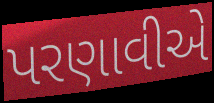
પરણાવીએ